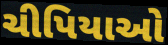
ચીપિયાઓ